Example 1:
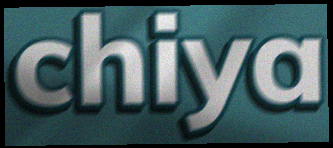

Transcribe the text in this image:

chiya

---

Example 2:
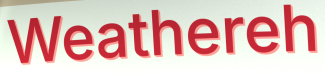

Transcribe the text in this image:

Weathereh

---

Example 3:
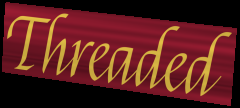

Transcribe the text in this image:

Threaded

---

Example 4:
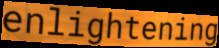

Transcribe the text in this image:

enlightening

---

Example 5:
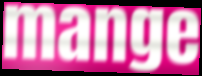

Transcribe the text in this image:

mange